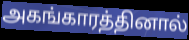
அகங்காரத்தினால்